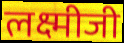
लक्ष्मीजी